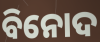
ବିନୋଦ